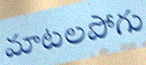
మాటలపోగు